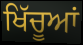
ਖਿੱਚੂਆਂ